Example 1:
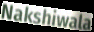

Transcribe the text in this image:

Nakshiwala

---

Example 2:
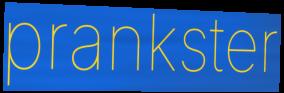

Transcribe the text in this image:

prankster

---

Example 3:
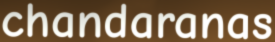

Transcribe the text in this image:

chandaranas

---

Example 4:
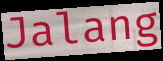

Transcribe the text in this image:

Jalang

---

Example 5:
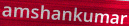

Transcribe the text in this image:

amshankumar